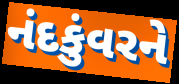
નંદકુંવરને